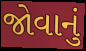
જોવાનું